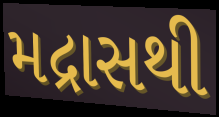
મદ્રાસથી